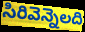
సిరివెన్నెలది